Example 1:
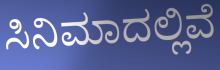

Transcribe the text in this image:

ಸಿನಿಮಾದಲ್ಲಿವೆ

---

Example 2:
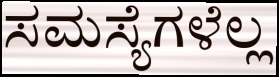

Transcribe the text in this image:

ಸಮಸ್ಯೆಗಳೆಲ್ಲ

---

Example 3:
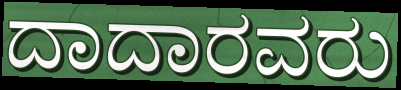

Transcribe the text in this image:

ದಾದಾರವರು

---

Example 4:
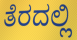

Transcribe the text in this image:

ತೆರದಲ್ಲಿ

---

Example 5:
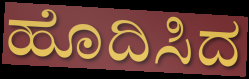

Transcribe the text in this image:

ಹೊದಿಸಿದ